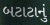
બટાટાનું